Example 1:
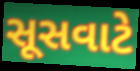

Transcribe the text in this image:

સૂસવાટે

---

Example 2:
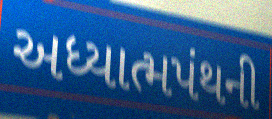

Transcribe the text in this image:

અધ્યાત્મપંથની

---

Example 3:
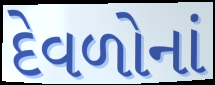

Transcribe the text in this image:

દેવળોનાં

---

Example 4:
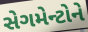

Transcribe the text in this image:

સેગમેન્ટોને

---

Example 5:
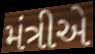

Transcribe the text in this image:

મંત્રીએ